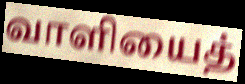
வாளியைத்